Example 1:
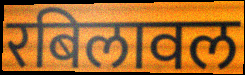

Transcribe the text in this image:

रबिलावल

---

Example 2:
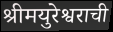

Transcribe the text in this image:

श्रीमयुरेश्वराची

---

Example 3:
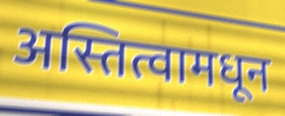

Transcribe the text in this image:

अस्तित्वामधून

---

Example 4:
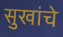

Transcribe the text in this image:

सुखांचे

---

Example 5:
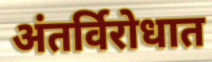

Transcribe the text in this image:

अंतर्विरोधात